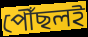
পৌঁছলই